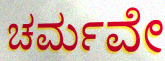
ಚರ್ಮವೇ